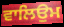
ਵਾਲਿਉਮ